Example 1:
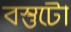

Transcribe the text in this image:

বস্তুটো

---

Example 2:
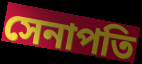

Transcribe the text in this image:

সেনাপতি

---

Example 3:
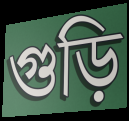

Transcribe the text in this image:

গুড়ি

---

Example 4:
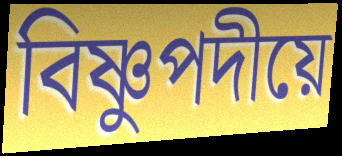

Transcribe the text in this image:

বিষ্ণুপদীয়ে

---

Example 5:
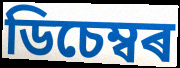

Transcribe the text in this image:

ডিচেম্বৰ